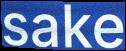
sake